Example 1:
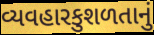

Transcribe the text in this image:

વ્યવહારકુશળતાનું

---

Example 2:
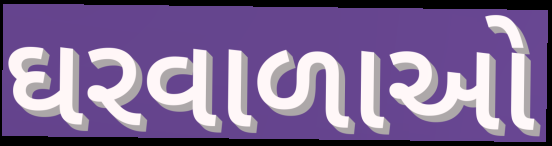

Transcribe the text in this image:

ઘરવાળાઓ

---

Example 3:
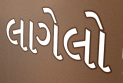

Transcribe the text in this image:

લાગેલો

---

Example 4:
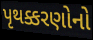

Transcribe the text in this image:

પૃથક્કરણોનો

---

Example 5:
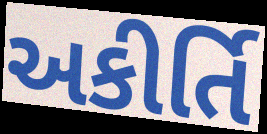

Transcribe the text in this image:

અકીર્તિ